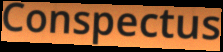
Conspectus